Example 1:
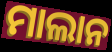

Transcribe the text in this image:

ମାଲାନ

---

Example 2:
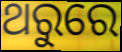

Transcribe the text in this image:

ଥରୁରେ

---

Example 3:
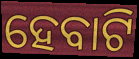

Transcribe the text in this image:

ହେବାଟି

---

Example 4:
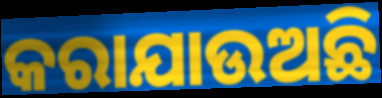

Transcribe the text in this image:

କରାଯାଉଅଛି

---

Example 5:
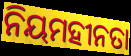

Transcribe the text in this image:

ନିୟମହୀନତା